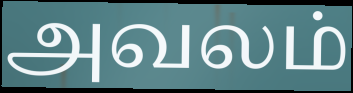
அவலம்